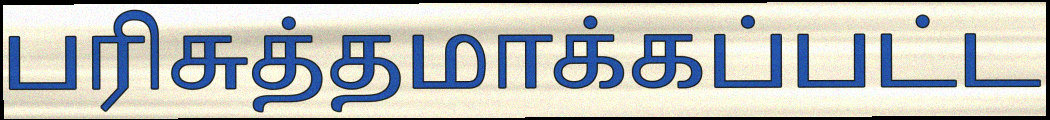
பரிசுத்தமாக்கப்பட்ட